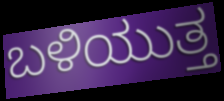
ಬಳಿಯುತ್ತ